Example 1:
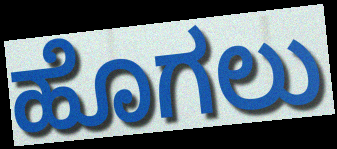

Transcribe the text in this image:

ಹೊಗಲು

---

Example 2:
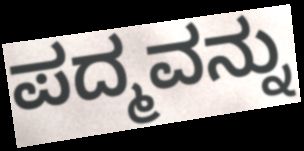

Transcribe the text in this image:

ಪದ್ಮವನ್ನು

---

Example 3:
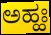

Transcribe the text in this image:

ಅಹ್ಹಃ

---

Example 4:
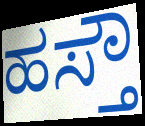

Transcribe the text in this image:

ಹಸ್ತೌ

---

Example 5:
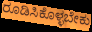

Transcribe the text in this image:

ರೂಡಿಸಿಕೊಳ್ಳಬೇಕು